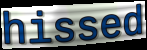
hissed